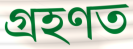
গ্ৰহণত